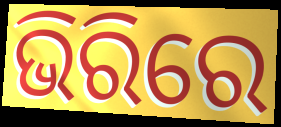
ଭିରିରେ